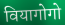
वियागोगो